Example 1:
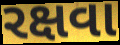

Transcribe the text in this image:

રક્ષવા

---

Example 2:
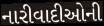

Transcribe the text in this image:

નારીવાદીઓની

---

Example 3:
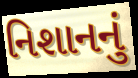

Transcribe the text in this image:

નિશાનનું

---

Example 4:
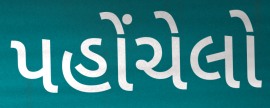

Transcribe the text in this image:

પહોંચેલો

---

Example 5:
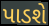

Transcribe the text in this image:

પાડશે